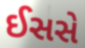
ઈસસે